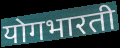
योगभारती